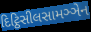
દિટ્ઠિસીલસામઞ્ઞેન